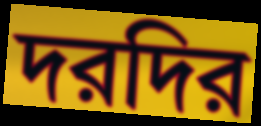
দরদির